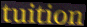
tuition